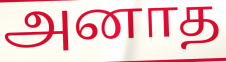
அனாத